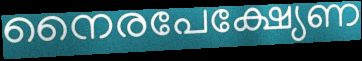
നൈരപേക്ഷ്യേണ